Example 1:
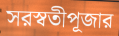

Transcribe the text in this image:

সরস্বতীপূজার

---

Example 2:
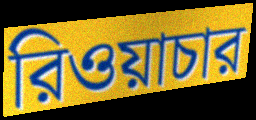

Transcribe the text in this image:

রিওয়াচার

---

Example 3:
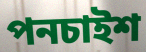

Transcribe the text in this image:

পনচাইশ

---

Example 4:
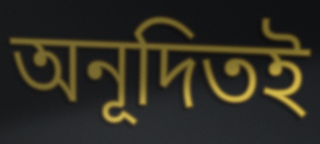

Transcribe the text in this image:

অনূদিতই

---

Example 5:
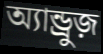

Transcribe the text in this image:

অ্যান্ড্রুজ়